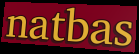
natbas